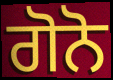
ਗੋਨੋ